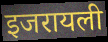
इजरायली